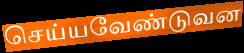
செய்யவேண்டுவன